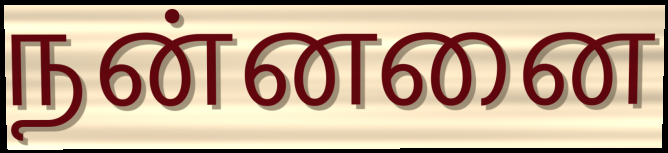
நன்னனை